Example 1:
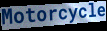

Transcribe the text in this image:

Motorcycle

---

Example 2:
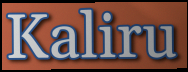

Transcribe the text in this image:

Kaliru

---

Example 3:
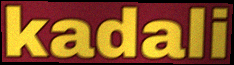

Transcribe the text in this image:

kadali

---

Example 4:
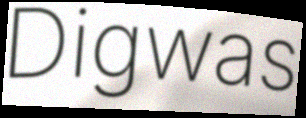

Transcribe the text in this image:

Digwas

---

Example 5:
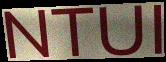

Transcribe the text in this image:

NTUI